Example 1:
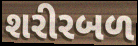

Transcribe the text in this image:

શરીરબળ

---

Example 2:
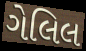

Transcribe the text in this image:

ગેલિલ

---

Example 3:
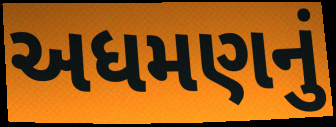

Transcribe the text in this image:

અધમણનું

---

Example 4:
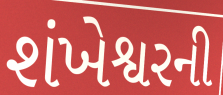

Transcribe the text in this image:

શંખેશ્વરની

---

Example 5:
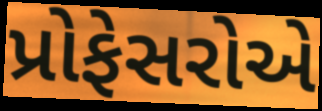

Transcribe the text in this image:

પ્રોફેસરોએ